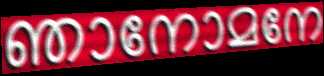
ഞാനോമനേ